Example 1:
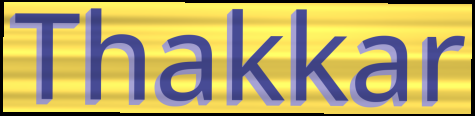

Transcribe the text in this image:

Thakkar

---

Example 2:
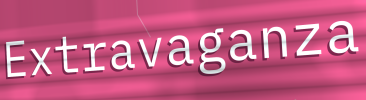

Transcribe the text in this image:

Extravaganza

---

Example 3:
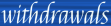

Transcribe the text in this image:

withdrawals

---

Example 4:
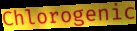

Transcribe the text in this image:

Chlorogenic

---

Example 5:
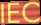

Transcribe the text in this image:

IEC